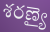
శరణ్యై